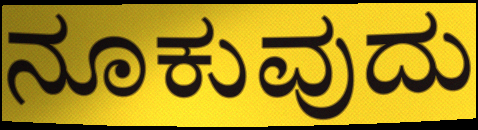
ನೂಕುವುದು